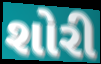
શોરી